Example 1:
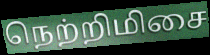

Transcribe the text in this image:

நெற்றிமிசை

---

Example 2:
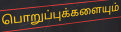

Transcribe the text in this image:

பொறுப்புக்களையும்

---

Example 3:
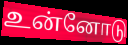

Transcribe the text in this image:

உன்னோடு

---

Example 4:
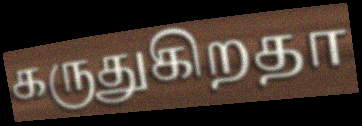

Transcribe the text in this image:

கருதுகிறதா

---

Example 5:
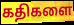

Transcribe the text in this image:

கதிகளை